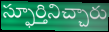
స్ఫూర్తినిచ్చారు